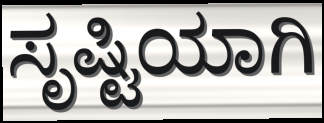
ಸೃಷ್ಟಿಯಾಗಿ